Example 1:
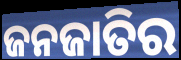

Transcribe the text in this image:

ଜନଜାତିର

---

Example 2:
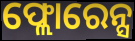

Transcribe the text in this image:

ଫ୍ଲୋରେନ୍ସ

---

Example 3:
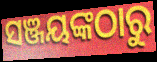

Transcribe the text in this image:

ସଞ୍ଜୟଙ୍କଠାରୁ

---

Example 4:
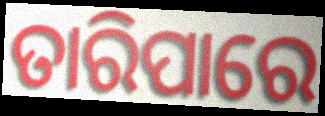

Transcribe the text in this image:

ତାରିପାରେ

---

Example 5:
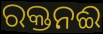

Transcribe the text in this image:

ରକ୍ତନଈ